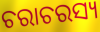
ଚରାଚରସ୍ୟ